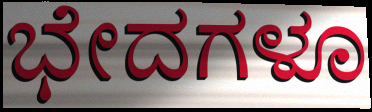
ಭೇದಗಳೂ